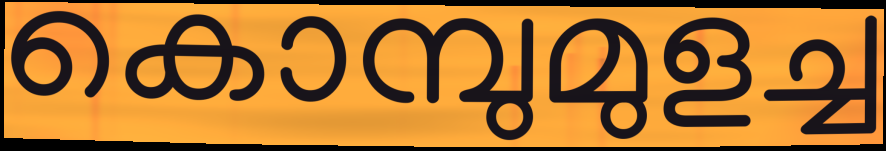
കൊമ്പുമുളച്ച